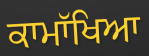
ਕਾਮਾੱਖਿਆ